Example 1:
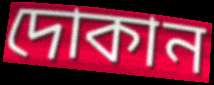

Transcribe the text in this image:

দোকান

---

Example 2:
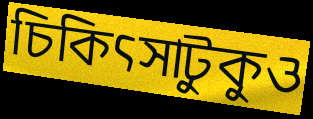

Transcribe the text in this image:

চিকিৎসাটুকুও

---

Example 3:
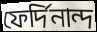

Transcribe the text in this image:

ফের্দিনান্দ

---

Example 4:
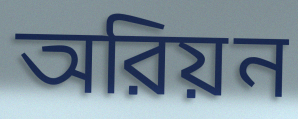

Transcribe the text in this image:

অরিয়ন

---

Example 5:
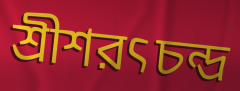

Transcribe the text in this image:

শ্রীশরৎচন্দ্র